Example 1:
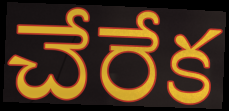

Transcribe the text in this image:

చేరేక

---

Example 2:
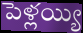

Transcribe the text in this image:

పెళ్లయ్యి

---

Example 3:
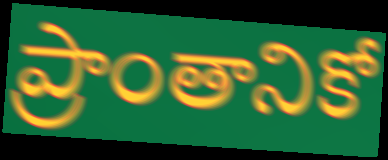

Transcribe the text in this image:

ప్రాంతానికో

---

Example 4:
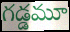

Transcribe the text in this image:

గడ్డమూ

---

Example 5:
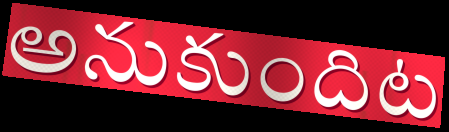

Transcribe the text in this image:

అనుకుందిట